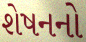
શેષનનો